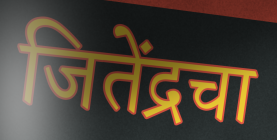
जितेंद्रचा